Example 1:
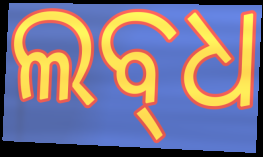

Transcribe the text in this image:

ଲବ୍‌ଧ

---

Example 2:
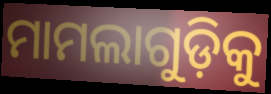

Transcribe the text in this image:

ମାମଲାଗୁଡ଼ିକୁ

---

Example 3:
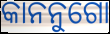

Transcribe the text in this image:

କାନନୁଗୋ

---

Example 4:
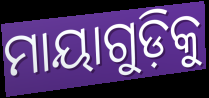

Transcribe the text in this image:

ମାୟାଗୁଡ଼ିକୁ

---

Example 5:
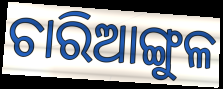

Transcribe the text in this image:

ଚାରିଆଙ୍ଗୁଳ